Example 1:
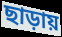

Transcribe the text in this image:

ছাড়ায়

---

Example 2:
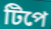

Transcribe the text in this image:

টিপে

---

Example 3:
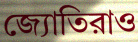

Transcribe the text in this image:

জ্যোতিরাও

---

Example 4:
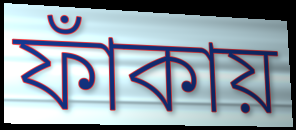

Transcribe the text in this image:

ফাঁকায়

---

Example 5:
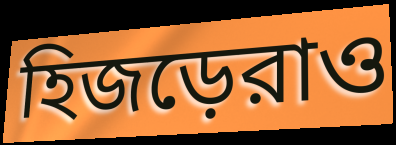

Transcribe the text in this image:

হিজড়েরাও